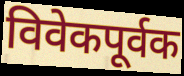
विवेकपूर्वक